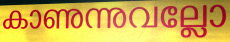
കാണുന്നുവല്ലോ